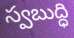
స్వబుద్ధి